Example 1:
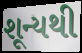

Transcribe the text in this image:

શૂન્યથી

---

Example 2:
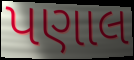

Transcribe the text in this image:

પણાલ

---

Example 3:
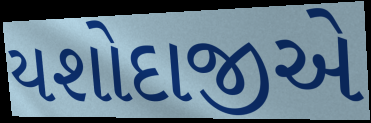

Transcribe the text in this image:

યશોદાજીએ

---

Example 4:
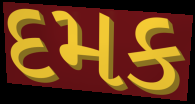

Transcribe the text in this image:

દમક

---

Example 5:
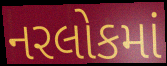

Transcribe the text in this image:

નરલોકમાં